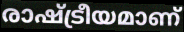
രാഷ്ട്രീയമാണ്